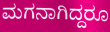
ಮಗನಾಗಿದ್ದರೂ